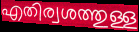
എതിര്വശത്തുള്ള